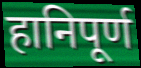
हानिपूर्ण